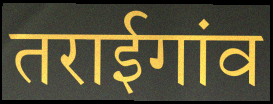
तराईगांव